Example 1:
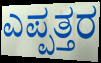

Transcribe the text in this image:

ಎಪ್ಪತ್ತರ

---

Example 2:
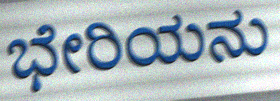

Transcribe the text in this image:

ಭೇರಿಯನು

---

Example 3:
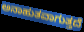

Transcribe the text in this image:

ಅನಾಹುತವಾಗುತ್ತದೆ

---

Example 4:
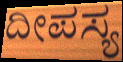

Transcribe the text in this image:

ದೀಪಸ್ಯ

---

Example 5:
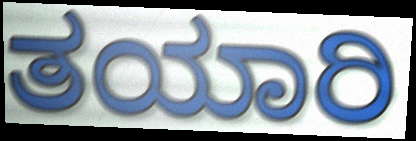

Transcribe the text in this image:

ತಯಾರಿ